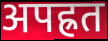
अपह्रत